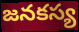
జనకస్య